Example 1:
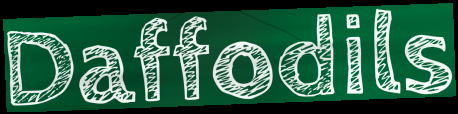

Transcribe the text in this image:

Daffodils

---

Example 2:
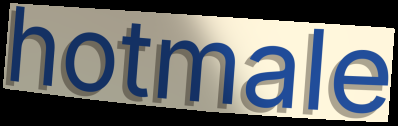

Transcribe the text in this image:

hotmale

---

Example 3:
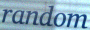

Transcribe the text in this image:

random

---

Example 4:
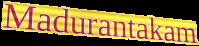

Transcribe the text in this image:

Madurantakam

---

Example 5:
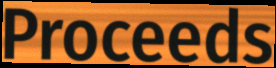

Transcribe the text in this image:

Proceeds